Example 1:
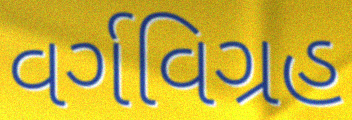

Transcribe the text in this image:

વર્ગવિગ્રહ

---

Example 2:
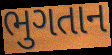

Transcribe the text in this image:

ભુગતાન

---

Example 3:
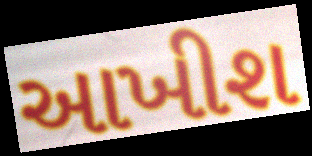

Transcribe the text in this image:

આખીશ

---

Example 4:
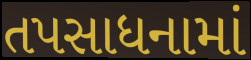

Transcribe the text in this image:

તપસાધનામાં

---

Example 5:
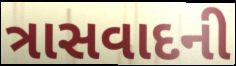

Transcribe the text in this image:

ત્રાસવાદની